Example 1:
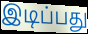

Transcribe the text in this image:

இடிப்பது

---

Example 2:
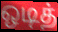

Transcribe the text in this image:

ஒடித்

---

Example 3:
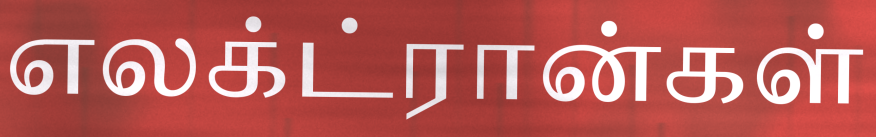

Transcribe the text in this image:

எலக்ட்ரான்கள்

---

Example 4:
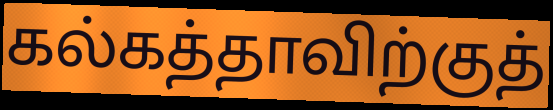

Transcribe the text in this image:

கல்கத்தாவிற்குத்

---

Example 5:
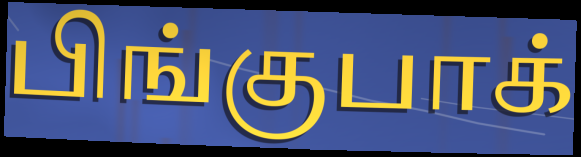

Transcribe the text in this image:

பிங்குபாக்